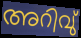
അറിവു്